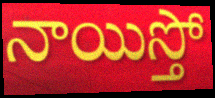
నాయిస్తో